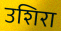
उशिरा